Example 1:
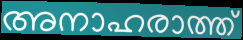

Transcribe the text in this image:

അനാഹരാത്ത്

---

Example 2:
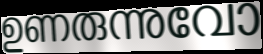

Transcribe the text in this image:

ഉണരുന്നുവോ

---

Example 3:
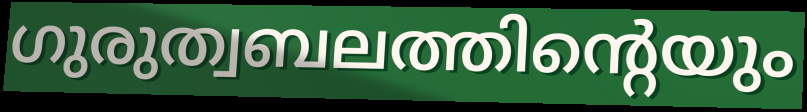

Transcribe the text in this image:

ഗുരുത്വബലത്തിന്റെയും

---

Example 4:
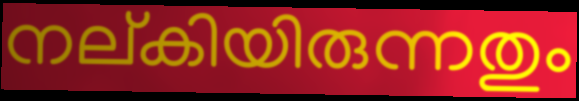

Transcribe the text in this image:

നല്കിയിരുന്നതും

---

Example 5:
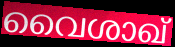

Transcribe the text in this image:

വൈശാഖ്